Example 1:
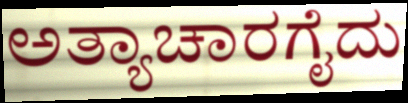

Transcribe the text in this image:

ಅತ್ಯಾಚಾರಗೈದು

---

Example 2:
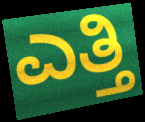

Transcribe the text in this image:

ಎತ್ತಿ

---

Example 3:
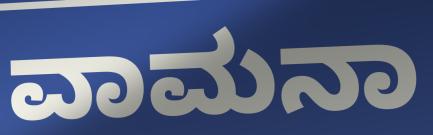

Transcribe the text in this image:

ವಾಮನಾ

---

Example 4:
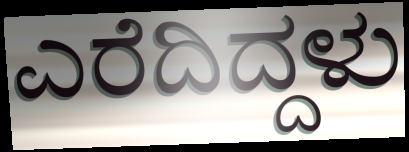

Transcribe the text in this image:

ಎರೆದಿದ್ದಳು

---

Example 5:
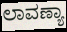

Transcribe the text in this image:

ಲಾವಣ್ಯಾ